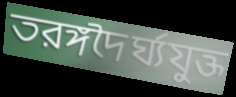
তরঙ্গদৈর্ঘ্যযুক্ত